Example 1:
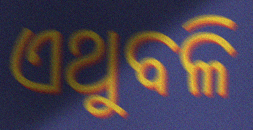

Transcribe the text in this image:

ଏଥୁବଳି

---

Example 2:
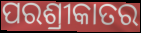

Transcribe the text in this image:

ପରଶ୍ରୀକାତର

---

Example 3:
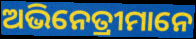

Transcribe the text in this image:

ଅଭିନେତ୍ରୀମାନେ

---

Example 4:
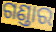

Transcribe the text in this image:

ଗଣ୍ଡାର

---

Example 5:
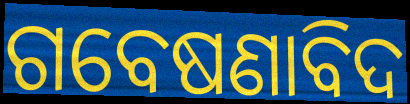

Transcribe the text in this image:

ଗବେଷଣାବିଦ